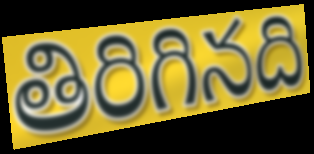
తిరిగినది